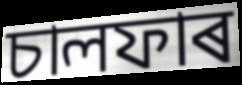
চালফাৰ